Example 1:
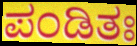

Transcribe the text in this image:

ಪಂಡಿತಃ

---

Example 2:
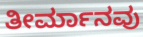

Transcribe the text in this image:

ತೀರ್ಮಾನವು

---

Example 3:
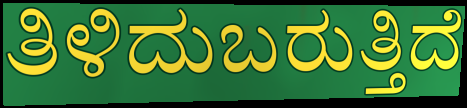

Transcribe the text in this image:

ತಿಳಿದುಬರುತ್ತಿದೆ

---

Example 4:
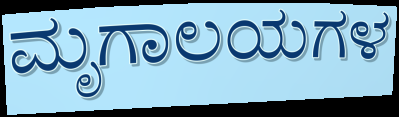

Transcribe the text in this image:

ಮೃಗಾಲಯಗಳ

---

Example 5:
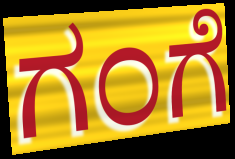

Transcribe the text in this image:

ಗಂಗೆ